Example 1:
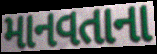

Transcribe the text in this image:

માનવતાના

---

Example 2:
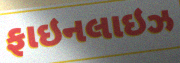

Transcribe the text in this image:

ફાઇનલાઇઝ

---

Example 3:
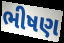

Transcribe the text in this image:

ભીષણ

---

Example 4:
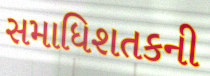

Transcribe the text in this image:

સમાધિશતકની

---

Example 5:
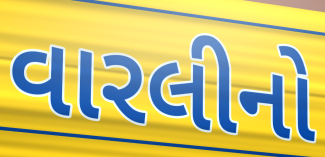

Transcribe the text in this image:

વારલીનો